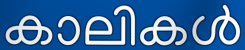
കാലികൾ